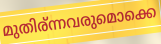
മുതിര്ന്നവരുമൊക്കെ